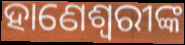
ହାଣେଶ୍ୱରୀଙ୍କ